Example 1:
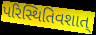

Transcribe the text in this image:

પરિસ્થિતિવશાત્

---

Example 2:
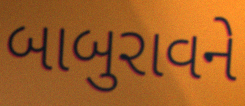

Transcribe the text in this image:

બાબુરાવને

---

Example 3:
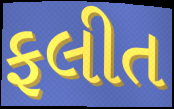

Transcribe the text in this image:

ફલીત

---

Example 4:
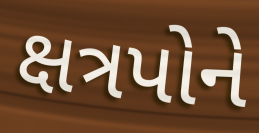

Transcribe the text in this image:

ક્ષત્રપોને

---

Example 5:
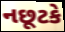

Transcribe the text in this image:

નછૂટકે